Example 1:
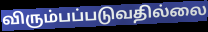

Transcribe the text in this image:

விரும்பப்படுவதில்லை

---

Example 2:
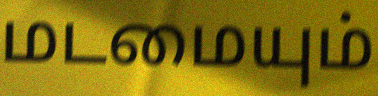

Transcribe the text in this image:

மடமையும்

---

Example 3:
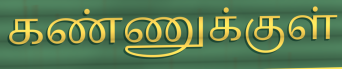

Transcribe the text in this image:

கண்ணுக்குள்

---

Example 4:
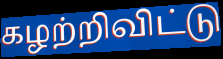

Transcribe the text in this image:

கழற்றிவிட்டு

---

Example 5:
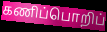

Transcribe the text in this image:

கணிப்பொறிப்